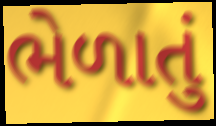
ભેળાતું